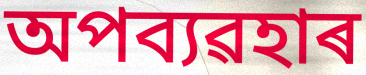
অপব্যৱহাৰ